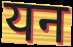
यन